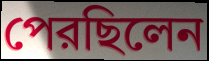
পেরছিলেন